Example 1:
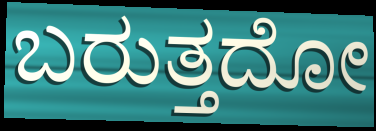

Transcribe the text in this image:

ಬರುತ್ತದೋ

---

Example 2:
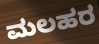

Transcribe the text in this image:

ಮಲಹರ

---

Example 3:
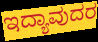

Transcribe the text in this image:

ಇದ್ಯಾವುದರ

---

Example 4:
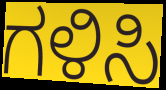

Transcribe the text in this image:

ಗಳಿಸಿ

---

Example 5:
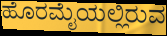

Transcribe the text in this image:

ಹೊರಮೈಯಲ್ಲಿರುವ